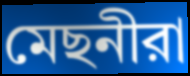
মেছনীরা